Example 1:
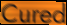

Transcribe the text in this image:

Cured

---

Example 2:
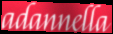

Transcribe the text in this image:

adannella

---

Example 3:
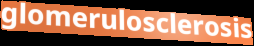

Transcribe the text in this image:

glomerulosclerosis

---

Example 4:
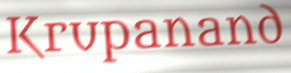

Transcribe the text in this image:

Krupanand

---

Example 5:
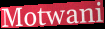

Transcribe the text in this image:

Motwani